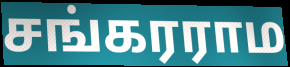
சங்கரராம